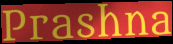
Prashna